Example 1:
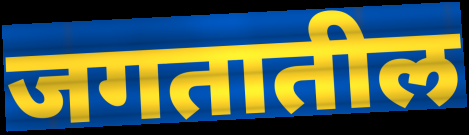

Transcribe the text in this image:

जगतातील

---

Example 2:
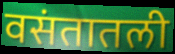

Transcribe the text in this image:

वसंतातली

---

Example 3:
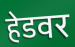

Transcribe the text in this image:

हेडवर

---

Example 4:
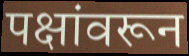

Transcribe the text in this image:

पक्षांवरून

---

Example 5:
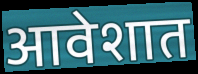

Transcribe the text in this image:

आवेशात